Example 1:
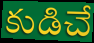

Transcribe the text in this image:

కుడిచే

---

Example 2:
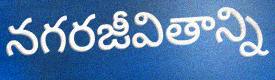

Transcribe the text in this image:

నగరజీవితాన్ని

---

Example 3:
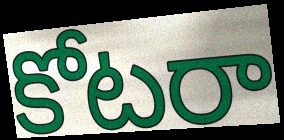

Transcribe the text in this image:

కోటరా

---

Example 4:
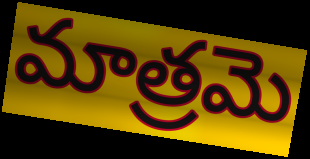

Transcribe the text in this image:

మాత్రమె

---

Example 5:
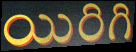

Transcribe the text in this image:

యిరిగి